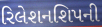
રિલેશનશિપની